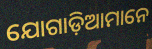
ଯୋଗାଡ଼ିଆମାନେ